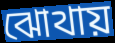
ঝোথায়